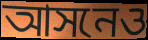
আসনেও